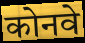
कोनवे